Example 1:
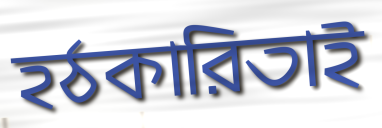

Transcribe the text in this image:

হঠকারিতাই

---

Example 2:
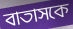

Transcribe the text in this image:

বাতাসকে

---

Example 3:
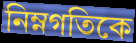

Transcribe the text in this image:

নিম্নগতিকে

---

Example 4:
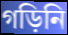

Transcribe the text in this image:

গড়িনি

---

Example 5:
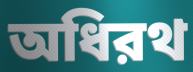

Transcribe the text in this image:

অধিরথ